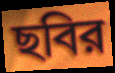
ছবির